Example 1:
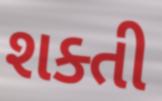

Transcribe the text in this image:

શક્તી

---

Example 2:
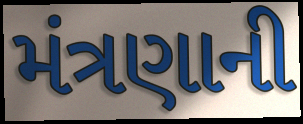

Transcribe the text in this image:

મંત્રણાની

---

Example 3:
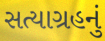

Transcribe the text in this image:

સત્યાગ્રહનું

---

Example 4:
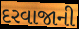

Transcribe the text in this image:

દરવાજાની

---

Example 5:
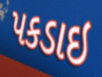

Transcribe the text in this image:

પકડાઇ